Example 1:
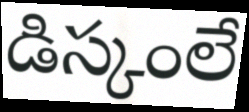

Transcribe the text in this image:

డిస్కంలే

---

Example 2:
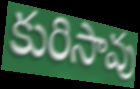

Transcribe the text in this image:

కురిసావు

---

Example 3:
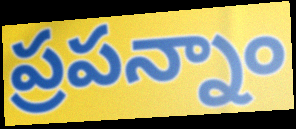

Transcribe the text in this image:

ప్రపన్నాం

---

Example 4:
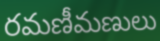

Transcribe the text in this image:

రమణీమణులు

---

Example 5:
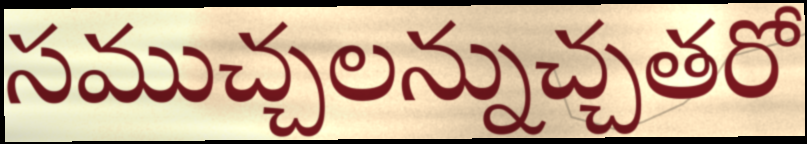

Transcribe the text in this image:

సముచ్చలన్నుచ్చతరో